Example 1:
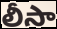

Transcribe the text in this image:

లీసా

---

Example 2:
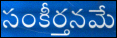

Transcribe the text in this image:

సంకీర్తనమే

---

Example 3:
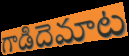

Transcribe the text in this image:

గాడిదెమాట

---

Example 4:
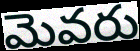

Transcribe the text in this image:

మెవరు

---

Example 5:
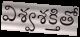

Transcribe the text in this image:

విశ్వశక్తితో